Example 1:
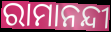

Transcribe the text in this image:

ରାମାନନ୍ଦୀ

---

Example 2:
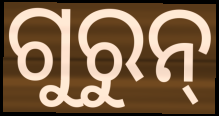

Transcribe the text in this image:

ଗୁରୁନ୍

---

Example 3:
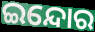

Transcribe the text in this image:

ଇନ୍ଦୋର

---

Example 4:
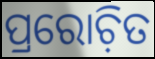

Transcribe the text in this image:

ପ୍ରରୋଚ଼ିତ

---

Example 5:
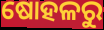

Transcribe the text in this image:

ଷୋହଳରୁ